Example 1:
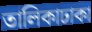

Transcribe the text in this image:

তালিকাঢাকা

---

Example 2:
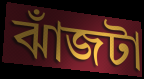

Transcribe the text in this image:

ঝাঁজটা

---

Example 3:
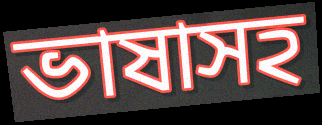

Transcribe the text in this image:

ভাষাসহ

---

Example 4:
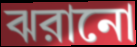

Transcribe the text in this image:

ঝরানো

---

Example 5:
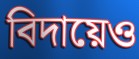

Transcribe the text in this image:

বিদায়েও